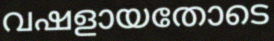
വഷളായതോടെ